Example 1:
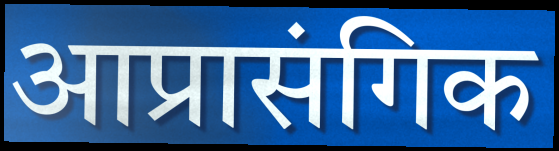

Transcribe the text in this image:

आप्रासंगिक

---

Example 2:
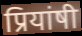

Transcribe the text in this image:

प्रियांषी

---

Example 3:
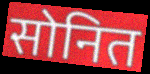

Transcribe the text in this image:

सोनित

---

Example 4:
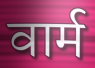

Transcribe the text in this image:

वार्म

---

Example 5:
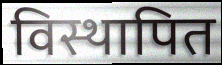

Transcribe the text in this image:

विस्थापित